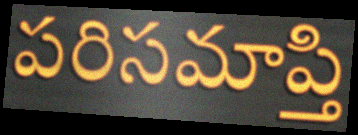
పరిసమాప్తి